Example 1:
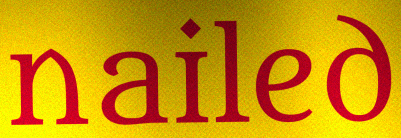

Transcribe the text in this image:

nailed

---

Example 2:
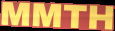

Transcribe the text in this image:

MMTH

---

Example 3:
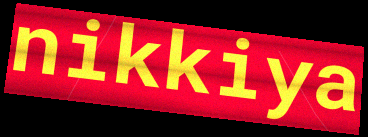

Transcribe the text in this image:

nikkiya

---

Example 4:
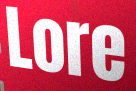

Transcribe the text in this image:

Lore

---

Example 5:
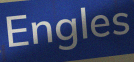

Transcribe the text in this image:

Engles